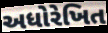
અધોરેખિત